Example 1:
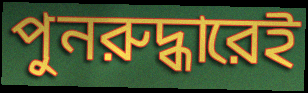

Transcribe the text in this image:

পুনরুদ্ধারেই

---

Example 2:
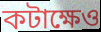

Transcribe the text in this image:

কটাক্ষেও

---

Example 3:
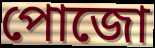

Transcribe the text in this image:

পোজো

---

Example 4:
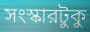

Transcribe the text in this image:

সংস্কারটুকু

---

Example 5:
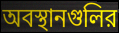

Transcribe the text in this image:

অবস্থানগুলির